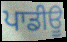
ਪਾਡੀਊ